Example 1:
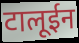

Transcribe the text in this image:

टालूईन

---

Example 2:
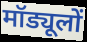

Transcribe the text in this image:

मॉड्यूलों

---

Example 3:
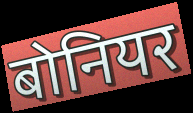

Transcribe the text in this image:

बोनियर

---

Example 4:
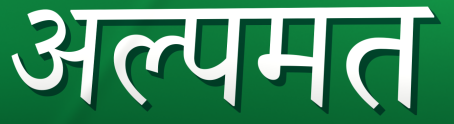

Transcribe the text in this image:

अल्पमत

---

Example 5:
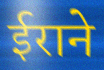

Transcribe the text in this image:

ईराने